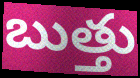
బుత్తు